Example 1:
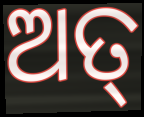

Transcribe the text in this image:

ଅତ୍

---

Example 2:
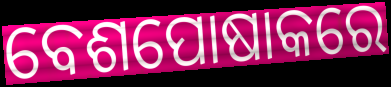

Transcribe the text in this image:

ବେଶପୋଷାକରେ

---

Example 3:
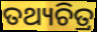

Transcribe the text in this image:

ତଥ୍ୟଚିତ୍ର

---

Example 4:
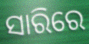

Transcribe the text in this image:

ସାରିରେ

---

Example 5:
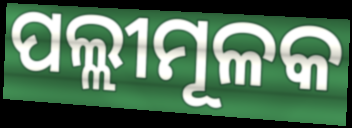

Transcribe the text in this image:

ପଲ୍ଲୀମୂଳକ